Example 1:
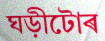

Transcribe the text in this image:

ঘড়ীটোৰ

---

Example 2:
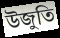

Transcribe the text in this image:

উজুতি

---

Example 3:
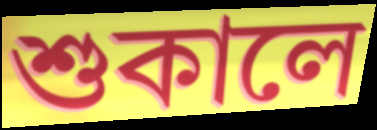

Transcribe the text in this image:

শুকালে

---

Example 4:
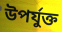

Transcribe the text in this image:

উপৰ্যুক্ত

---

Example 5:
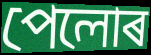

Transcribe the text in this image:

পেলোৰ